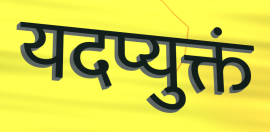
यदप्युक्तं